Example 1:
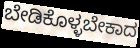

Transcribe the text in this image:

ಬೇಡಿಕೊಳ್ಳಬೇಕಾದ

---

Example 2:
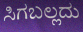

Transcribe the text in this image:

ಸಿಗಬಲ್ಲದು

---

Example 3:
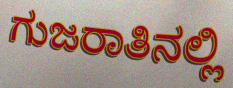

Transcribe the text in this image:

ಗುಜರಾತಿನಲ್ಲಿ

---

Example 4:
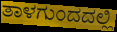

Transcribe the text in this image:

ತಾಳಗುಂದದಲ್ಲಿ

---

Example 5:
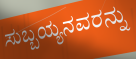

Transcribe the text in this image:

ಸುಬ್ಬಯ್ಯನವರನ್ನು